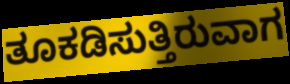
ತೂಕಡಿಸುತ್ತಿರುವಾಗ